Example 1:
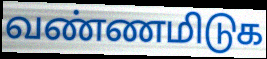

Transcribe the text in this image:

வண்ணமிடுக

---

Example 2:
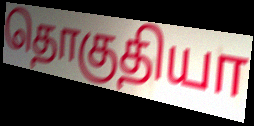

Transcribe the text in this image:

தொகுதியா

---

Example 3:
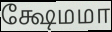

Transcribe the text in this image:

க்ஷேமமா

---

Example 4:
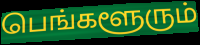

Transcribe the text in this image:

பெங்களூரும்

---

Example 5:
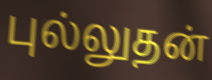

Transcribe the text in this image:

புல்லுதன்